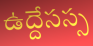
ఉద్దేసస్స